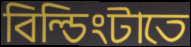
বিল্ডিংটাতে